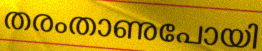
തരംതാണുപോയി